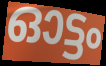
ഓട്ടം